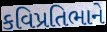
કવિપ્રતિભાને